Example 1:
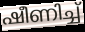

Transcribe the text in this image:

ഷീണിച്ച്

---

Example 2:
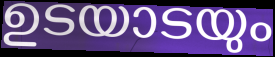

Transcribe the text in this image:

ഉടയാടയും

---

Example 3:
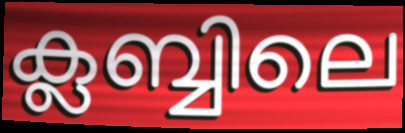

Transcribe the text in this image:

ക്ലബ്ബിലെ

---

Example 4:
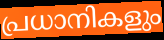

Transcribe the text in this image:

പ്രധാനികളും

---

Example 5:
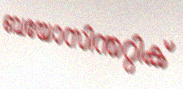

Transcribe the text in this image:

ബയോസിന്തറ്റിക്